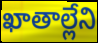
ఖాతాల్లేని